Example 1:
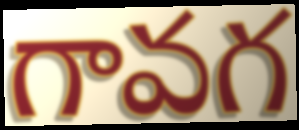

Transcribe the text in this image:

గావగ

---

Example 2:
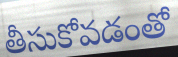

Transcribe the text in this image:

తీసుకోవడంతో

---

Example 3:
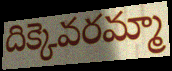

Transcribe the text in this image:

దిక్కెవరమ్మా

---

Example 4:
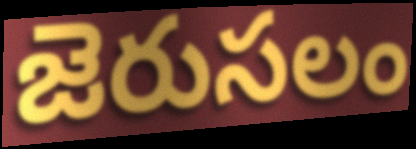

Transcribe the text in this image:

జెరుసలం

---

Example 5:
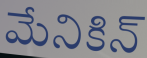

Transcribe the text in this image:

మేనికిన్